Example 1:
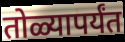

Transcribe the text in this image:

तोळ्यापर्यंत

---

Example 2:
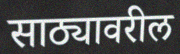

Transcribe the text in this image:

साठ्यावरील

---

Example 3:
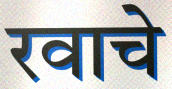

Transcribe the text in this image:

रवाचे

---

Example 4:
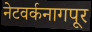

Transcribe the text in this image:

नेटवर्कनागपूर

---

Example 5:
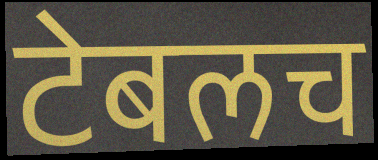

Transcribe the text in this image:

टेबलच